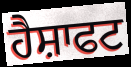
ਹੈਸ਼ਾਫਟ